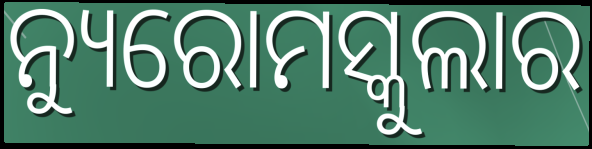
ନ୍ୟୁରୋମସ୍କୁଲାର